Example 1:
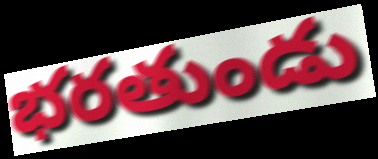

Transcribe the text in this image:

భరతుండు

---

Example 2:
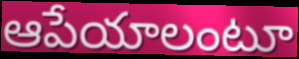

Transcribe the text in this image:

ఆపేయాలంటూ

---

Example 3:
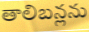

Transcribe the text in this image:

తాలిబన్లను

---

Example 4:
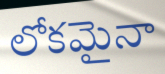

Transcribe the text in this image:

లోకమైనా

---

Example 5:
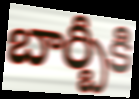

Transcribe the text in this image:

బార్బీకి